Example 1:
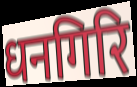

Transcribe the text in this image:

धनगिरि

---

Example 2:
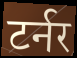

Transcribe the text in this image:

टर्नर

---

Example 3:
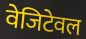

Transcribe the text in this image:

वेजिटेवल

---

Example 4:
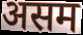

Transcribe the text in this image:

असम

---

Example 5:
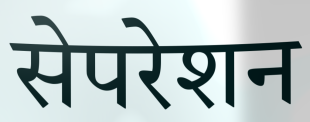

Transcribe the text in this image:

सेपरेशन